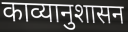
काव्यानुशासन